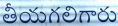
తీయగలిగారు